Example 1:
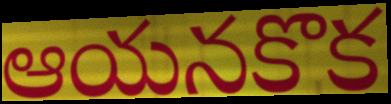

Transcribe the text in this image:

ఆయనకొక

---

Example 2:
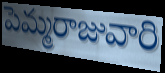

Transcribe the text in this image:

పెమ్మరాజువారి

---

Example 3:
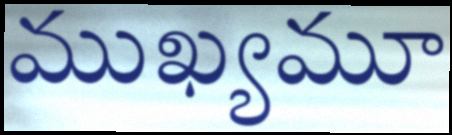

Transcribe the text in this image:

ముఖ్యమూ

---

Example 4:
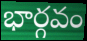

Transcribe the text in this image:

భార్గవం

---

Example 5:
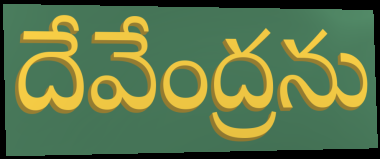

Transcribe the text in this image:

దేవేంద్రను